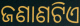
ଜଣାଣଟିଏ